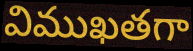
విముఖతగా